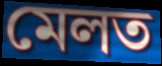
মেলত